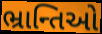
ભ્રાન્તિઓ